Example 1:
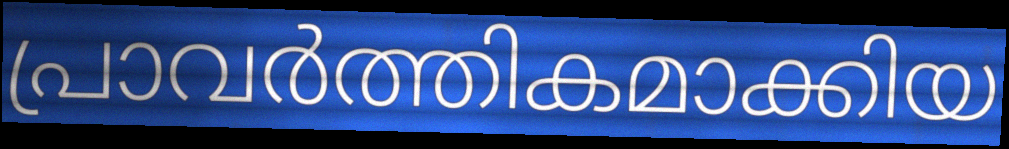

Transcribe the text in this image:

പ്രാവർത്തികമാക്കിയ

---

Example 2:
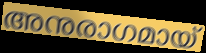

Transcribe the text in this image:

അനുരാഗമായ്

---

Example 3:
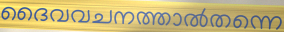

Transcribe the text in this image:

ദൈവവചനത്താൽതന്നെ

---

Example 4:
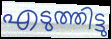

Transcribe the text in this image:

എടുത്തിട്ടു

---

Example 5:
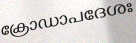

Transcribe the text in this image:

ക്രോഡാപദേശഃ